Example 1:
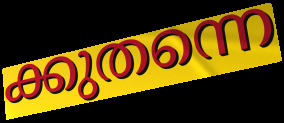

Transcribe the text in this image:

ക്കുതന്നെ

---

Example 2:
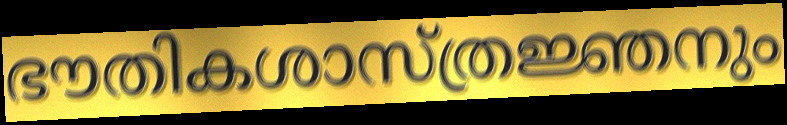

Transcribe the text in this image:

ഭൗതികശാസ്ത്രജ്ഞനും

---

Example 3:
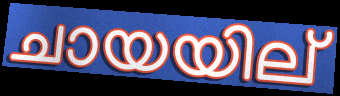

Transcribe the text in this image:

ചായയില്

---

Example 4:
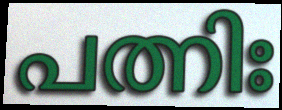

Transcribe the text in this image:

പത്നിഃ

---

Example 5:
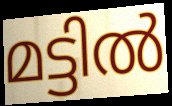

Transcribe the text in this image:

മട്ടിൽ